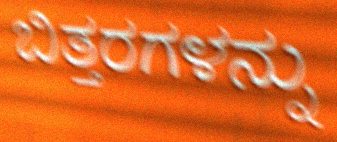
ಬಿತ್ತರಗಳನ್ನು